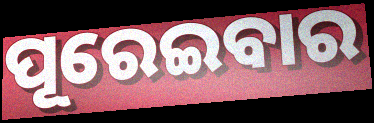
ପୂରେଇବାର